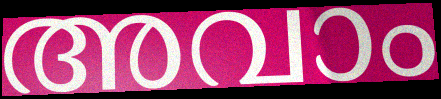
അവാം